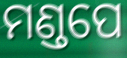
ମଣ୍ଡପେ